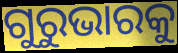
ଗୁରୁଭାରକୁ